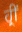
ਹ੍ਰੀਂ